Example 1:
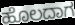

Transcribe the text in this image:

ಹೊಲದಾಗ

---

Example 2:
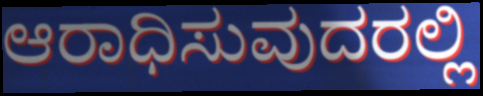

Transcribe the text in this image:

ಆರಾಧಿಸುವುದರಲ್ಲಿ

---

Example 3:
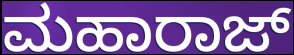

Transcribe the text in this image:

ಮಹಾರಾಜ್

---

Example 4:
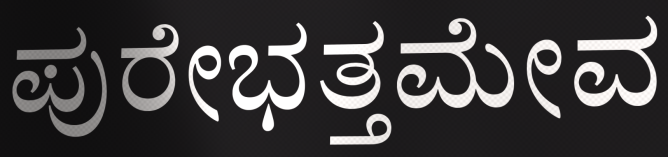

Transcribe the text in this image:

ಪುರೇಭತ್ತಮೇವ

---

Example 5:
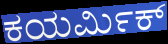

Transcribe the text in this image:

ಕಯರ್ಮಿಕ್